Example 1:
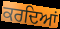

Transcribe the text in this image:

ਕਰਦਿਆਂ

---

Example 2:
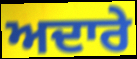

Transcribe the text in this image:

ਅਦਾਰੇ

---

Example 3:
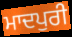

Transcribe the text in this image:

ਮਾਦਪੁਰੀ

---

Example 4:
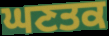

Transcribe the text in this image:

ਘਣਤਕ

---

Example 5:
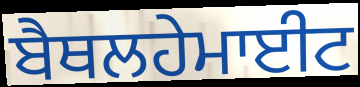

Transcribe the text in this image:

ਬੈਥਲਹੇਮਾਈਟ